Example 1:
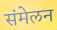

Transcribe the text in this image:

संमेलन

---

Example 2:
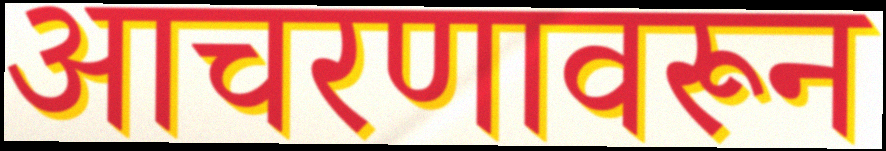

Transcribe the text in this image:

आचरणावरून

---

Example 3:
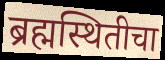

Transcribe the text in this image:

ब्रह्मस्थितीचा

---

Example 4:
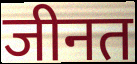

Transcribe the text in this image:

जीनत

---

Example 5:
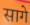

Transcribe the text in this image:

सागे